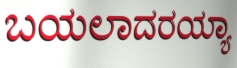
ಬಯಲಾದರಯ್ಯಾ